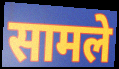
सामले